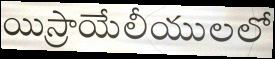
యిస్రాయేలీయులలో